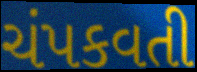
ચંપકવતી